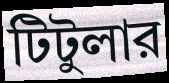
টিটুলার